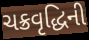
ચક્રવૃદ્ધિની